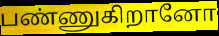
பண்ணுகிறானோ